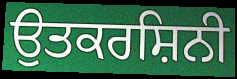
ਉਤਕਰਸ਼ਿਨੀ